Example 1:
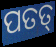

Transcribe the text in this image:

ପତତ୍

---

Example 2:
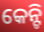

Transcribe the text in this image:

କେନ୍ଟି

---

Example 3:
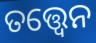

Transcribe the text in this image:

ତତ୍ତ୍ଵେନ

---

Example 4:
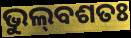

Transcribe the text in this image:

ଭୁଲ୍‌ବଶତଃ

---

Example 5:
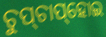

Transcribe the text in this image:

ଚୁପ୍‌ଚାପ୍‌ହୋଇ